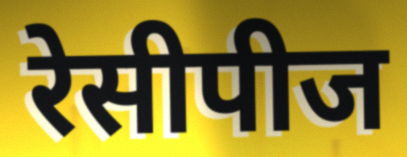
रेसीपीज